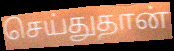
செய்துதான்